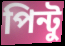
পিন্টু